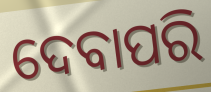
ଦେବାପରି